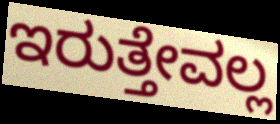
ಇರುತ್ತೇವಲ್ಲ